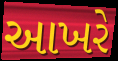
આખરે